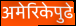
अमेरिकेपुढे